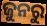
ଜୁନରୁ